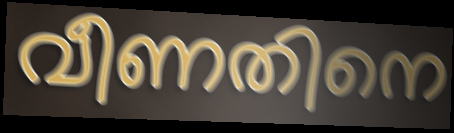
വീണതിനെ